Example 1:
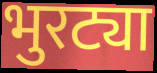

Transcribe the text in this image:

भुरट्या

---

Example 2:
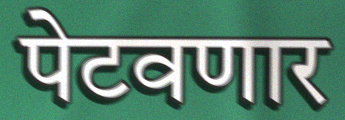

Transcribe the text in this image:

पेटवणार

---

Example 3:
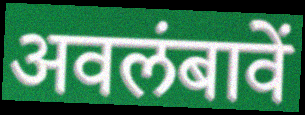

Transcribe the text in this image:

अवलंबावें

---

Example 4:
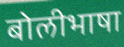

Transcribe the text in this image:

बोलीभाषा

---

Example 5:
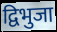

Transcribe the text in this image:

द्विभुजा